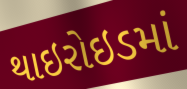
થાઇરોઇડમાં